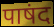
पाषंद